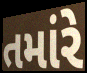
તમાંરે